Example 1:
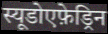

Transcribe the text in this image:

स्यूडोएफ़ेड्रिन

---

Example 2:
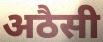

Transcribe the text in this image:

अठैसी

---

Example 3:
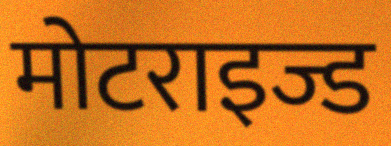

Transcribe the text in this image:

मोटराइज्ड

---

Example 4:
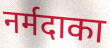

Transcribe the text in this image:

नर्मदाका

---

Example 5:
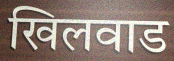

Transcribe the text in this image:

खिलवाड